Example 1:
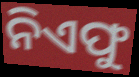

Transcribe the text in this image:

ନିଏଫୁ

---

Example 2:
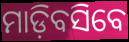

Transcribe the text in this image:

ମାଡ଼ିବସିବେ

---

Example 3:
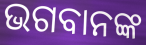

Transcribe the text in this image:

ଭଗବାନଙ୍କ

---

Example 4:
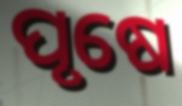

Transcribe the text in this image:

ପୃଷେ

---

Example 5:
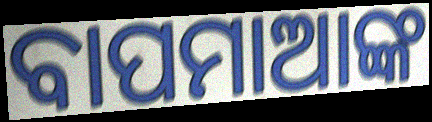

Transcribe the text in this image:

ବାପମାଆଙ୍କ